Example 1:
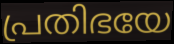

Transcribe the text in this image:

പ്രതിഭയേ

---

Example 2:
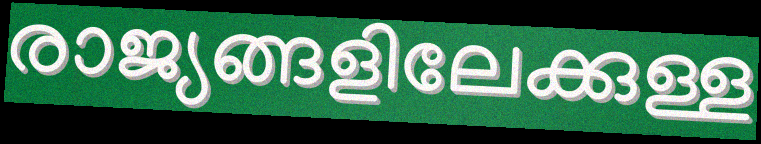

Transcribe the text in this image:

രാജ്യങ്ങളിലേക്കുള്ള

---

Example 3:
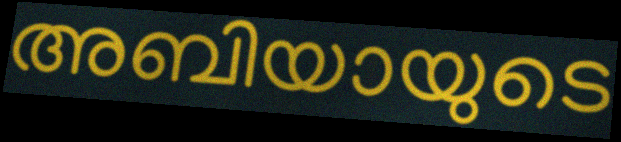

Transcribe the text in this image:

അബിയായുടെ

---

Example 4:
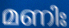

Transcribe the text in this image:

മണിഃ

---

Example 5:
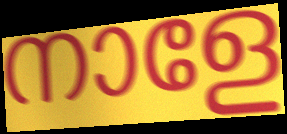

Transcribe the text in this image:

നാളേ